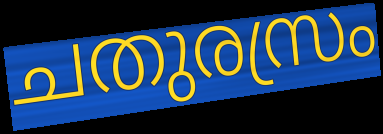
ചതുരസ്രം